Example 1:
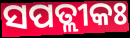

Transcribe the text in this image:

ସପତ୍ଲୀକଃ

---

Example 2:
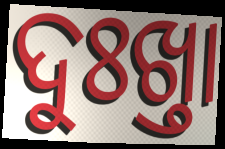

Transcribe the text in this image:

ଦୁଃଖ୍ତା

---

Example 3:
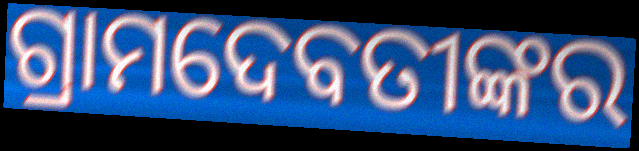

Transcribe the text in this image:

ଗ୍ରାମଦେବତୀଙ୍କର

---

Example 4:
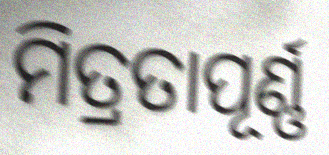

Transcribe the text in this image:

ମିତ୍ରତାପୂର୍ଣ୍ଣ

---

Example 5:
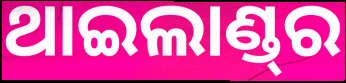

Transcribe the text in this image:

ଥାଇଲାଣ୍ଡ୍‌ର